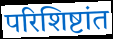
परिशिष्टांत